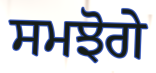
ਸਮਝੋਗੇ